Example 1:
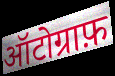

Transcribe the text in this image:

ऑटोग्राफ़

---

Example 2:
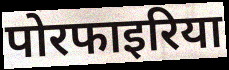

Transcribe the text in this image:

पोरफाइरिया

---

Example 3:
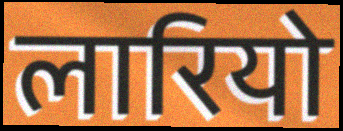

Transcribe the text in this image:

लारियो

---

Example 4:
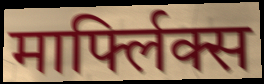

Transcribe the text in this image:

मार्फ्लिक्स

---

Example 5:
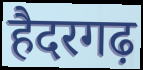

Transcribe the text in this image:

हैदरगढ़